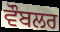
ਵੌਬਲਰ